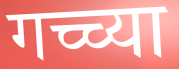
गच्च्या